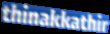
thinakkathir